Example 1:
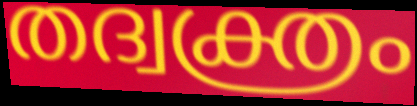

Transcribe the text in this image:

തദ്വക്ത്രം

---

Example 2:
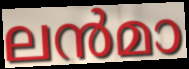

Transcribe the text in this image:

ലൻമാ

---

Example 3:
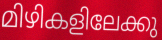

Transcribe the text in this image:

മിഴികളിലേക്കു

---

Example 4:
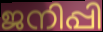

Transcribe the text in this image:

ജനിപ്പി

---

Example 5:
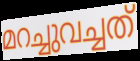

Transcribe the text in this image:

മറച്ചുവച്ചത്